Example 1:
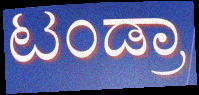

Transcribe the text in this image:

ಟಂಡ್ರಾ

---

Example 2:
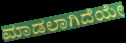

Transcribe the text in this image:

ಮಾಡಲಾಗಿದೆಯೇ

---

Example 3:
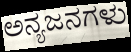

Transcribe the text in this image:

ಅನ್ಯಜನಗಳು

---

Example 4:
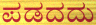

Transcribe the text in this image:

ಪಡದದು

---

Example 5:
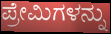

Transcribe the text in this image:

ಪ್ರೇಮಿಗಳನ್ನು